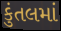
કુંતલમાં